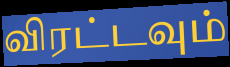
விரட்டவும்